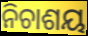
ନିଚାଶୟ